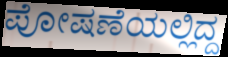
ಪೋಷಣೆಯಲ್ಲಿದ್ದ